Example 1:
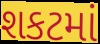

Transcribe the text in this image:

શકટમાં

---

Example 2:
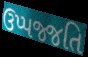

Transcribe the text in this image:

ઉપ્પજ્જતિ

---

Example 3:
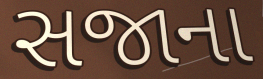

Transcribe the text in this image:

સજાના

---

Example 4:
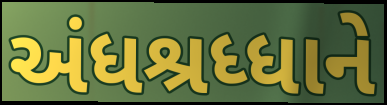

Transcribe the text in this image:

અંધશ્રધ્ધાને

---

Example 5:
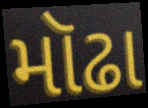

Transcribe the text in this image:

મૉઢા